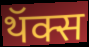
थॅक्स